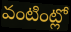
వంటింట్లో